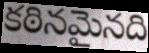
కఠినమైనది